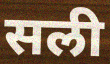
सली